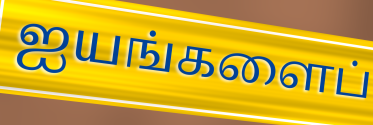
ஐயங்களைப்